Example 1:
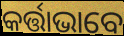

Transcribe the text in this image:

କର୍ତ୍ତାଭାବେ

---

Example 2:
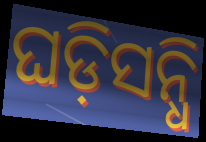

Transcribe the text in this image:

ଘଡ଼ିସନ୍ଧି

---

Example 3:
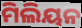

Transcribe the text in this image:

ମିଲିୟନ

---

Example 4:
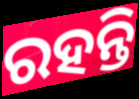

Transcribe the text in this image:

ରହନ୍ତି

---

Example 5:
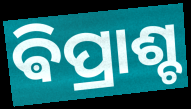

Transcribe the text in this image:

ଵିପ୍ରାଶ୍ଚ